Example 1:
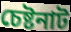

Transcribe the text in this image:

চেষ্টনাট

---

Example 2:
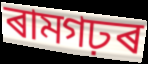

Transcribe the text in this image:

ৰামগঢ়ৰ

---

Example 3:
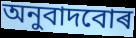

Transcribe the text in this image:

অনুবাদবোৰ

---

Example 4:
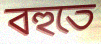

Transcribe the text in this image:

বহুতে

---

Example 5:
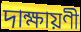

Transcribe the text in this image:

দাক্ষায়ণী